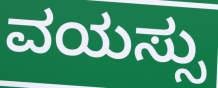
ವಯಸ್ಸು